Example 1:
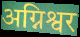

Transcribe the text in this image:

अग्निश्वर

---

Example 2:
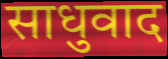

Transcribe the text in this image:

साधुवाद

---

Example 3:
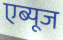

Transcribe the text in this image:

एब्यूज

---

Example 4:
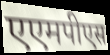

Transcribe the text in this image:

एएमपीएस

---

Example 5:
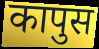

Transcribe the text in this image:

कापुस